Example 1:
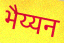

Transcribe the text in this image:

भैय्यन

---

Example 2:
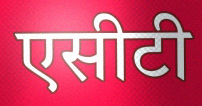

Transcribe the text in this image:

एसीटी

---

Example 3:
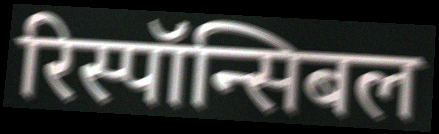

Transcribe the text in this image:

रिस्पॉन्सिबल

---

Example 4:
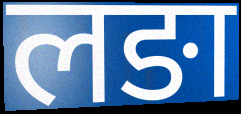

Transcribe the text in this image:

लङा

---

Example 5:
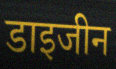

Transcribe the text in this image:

डाइजीन